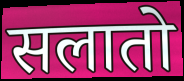
सलातो